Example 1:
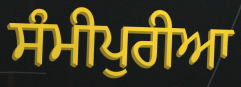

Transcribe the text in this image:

ਸੰਮੀਪੁਰੀਆ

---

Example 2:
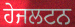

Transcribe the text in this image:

ਹੇਜਲਟਨ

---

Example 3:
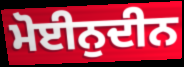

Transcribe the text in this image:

ਮੋਈਨੁਦੀਨ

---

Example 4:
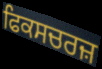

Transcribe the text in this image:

ਫਿਕਸਚਰਜ਼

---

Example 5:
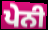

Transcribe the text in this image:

ਪੇਨੀ